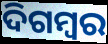
ଦିଗମ୍ବର